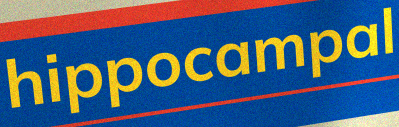
hippocampal